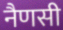
नैणसी